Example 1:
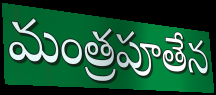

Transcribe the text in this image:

మంత్రపూతేన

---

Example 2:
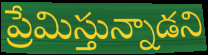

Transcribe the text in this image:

ప్రేమిస్తున్నాడని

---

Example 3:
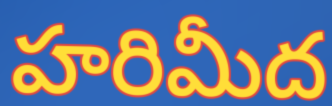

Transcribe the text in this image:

హరిమీద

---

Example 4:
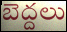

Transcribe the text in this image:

బెద్దలు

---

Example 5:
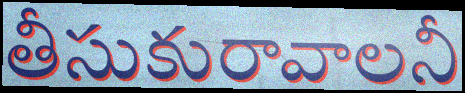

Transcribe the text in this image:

తీసుకురావాలనీ